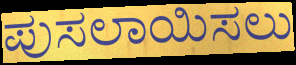
ಪುಸಲಾಯಿಸಲು